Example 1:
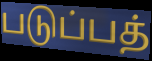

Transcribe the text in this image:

படுப்பத்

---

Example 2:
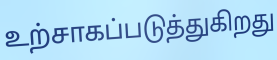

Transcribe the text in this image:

உற்சாகப்படுத்துகிறது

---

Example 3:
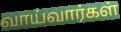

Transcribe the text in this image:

வாய்வார்கள்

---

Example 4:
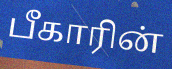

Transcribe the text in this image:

பீகாரின்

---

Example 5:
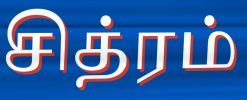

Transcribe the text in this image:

சித்ரம்